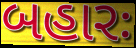
બહારઃ